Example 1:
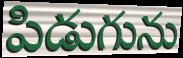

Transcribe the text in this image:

పిడుగును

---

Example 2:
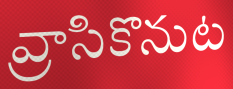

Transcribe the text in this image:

వ్రాసికొనుట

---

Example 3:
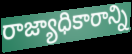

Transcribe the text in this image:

రాజ్యాధికారాన్ని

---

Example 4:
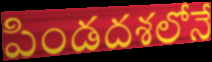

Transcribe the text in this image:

పిండదశలోనే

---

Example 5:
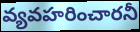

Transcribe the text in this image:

వ్యవహరించారనీ